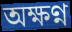
অক্ষণ্ন